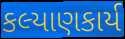
કલ્યાણકાર્ય